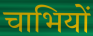
चाभियों